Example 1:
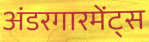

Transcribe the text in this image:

अंडरगारमेंट्स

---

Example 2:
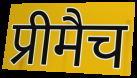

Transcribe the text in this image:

प्रीमैच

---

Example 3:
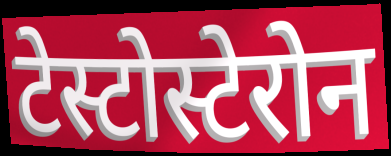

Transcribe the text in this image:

टेस्टोस्टेरोन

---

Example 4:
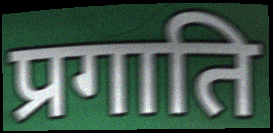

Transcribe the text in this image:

प्रगाति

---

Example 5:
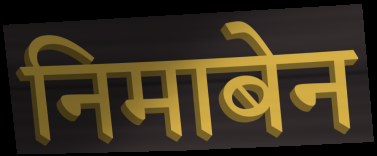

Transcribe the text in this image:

निमाबेन